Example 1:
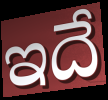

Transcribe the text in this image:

ఇదే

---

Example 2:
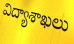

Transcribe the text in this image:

విద్యాశాఖలు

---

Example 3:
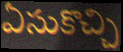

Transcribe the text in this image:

ఏసుకొచ్చి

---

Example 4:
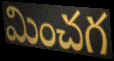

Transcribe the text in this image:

మించగ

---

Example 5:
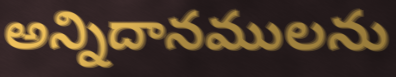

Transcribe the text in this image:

అన్నిదానములను